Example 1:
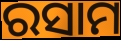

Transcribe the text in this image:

ରସାମ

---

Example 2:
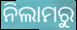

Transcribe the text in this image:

ନିଲାମରୁ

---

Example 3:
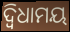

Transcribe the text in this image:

ଦ୍ୱିଧାମୟ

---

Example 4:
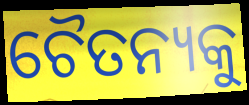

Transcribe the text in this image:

ଚୈତନ୍ୟକୁ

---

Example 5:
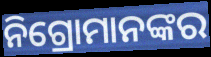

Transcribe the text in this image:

ନିଗ୍ରୋମାନଙ୍କର